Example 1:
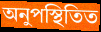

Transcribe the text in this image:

অনুপস্থিতিত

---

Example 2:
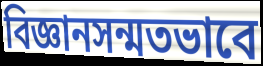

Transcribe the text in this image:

বিজ্ঞানসন্মতভাবে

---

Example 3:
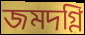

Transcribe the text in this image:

জমদগ্নি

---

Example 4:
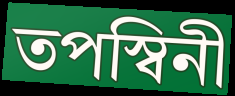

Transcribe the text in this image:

তপস্বিনী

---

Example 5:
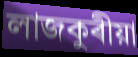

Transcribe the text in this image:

লাজকুৰীয়া